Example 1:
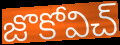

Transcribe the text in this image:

జొకోవిచ్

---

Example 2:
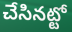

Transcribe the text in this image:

చేసినట్టో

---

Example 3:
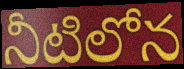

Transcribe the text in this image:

నీటిలోన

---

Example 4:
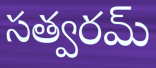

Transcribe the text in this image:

సత్వరమ్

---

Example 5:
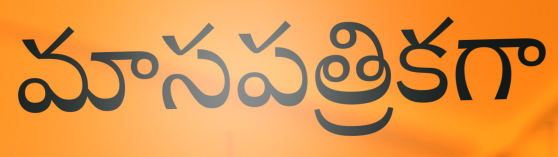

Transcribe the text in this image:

మాసపత్రికగా